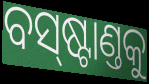
ବସ୍‌ଷ୍ଟାଣ୍ତକୁ